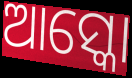
ଆସ୍କୋ